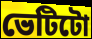
ভেটিটো